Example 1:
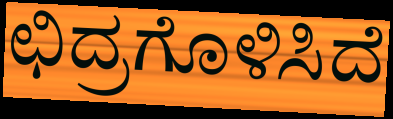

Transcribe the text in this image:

ಛಿದ್ರಗೊಳಿಸಿದೆ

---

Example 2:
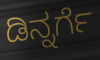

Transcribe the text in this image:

ಡಿನ್ನರ್ಗೆ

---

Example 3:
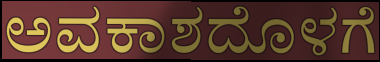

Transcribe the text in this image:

ಅವಕಾಶದೊಳಗೆ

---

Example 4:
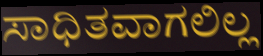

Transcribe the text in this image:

ಸಾಧಿತವಾಗಲಿಲ್ಲ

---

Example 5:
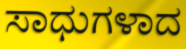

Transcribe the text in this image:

ಸಾಧುಗಳಾದ